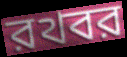
রথবর